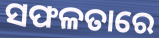
ସଫଳତାରେ